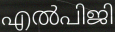
എൽപിജി